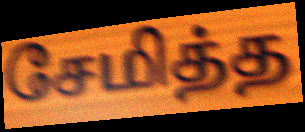
சேமித்த